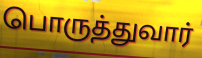
பொருத்துவார்